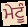
ਮੇਟੂੰ